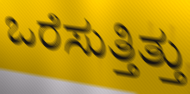
ಒರೆಸುತ್ತಿತ್ತು